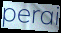
perai